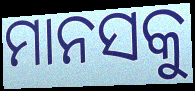
ମାନସକୁ